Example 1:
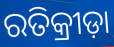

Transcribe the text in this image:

ରତିକ୍ରୀଡ଼ା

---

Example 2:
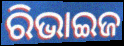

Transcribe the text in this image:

ରିଭାଇଜ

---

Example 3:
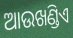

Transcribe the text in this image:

ଆଉଖଣ୍ଡିଏ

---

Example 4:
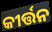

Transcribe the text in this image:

କୀର୍ତ୍ତନ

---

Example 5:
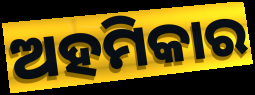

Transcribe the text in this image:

ଅହମିକାର